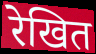
रेखित